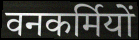
वनकर्मियों